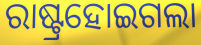
ରାଷ୍ଟ୍ରହୋଇଗଲା